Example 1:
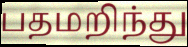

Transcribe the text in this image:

பதமறிந்து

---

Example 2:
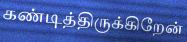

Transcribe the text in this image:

கண்டித்திருக்கிறேன்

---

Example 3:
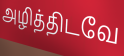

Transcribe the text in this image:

அழித்திடவே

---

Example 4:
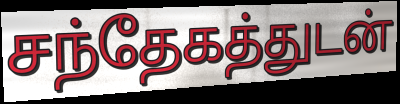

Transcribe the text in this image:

சந்தேகத்துடன்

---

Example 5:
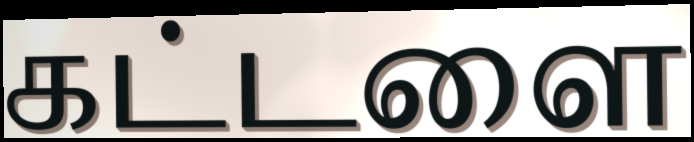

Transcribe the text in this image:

கட்டளை